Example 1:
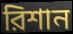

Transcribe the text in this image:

রিশান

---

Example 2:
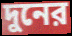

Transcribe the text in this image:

দুনের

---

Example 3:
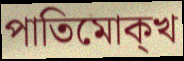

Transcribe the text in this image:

পাতিমোক্খ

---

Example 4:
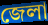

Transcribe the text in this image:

জেলা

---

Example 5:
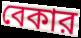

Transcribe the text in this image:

বেকার